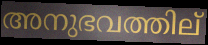
അനുഭവത്തില്